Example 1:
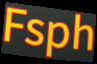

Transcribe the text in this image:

Fsph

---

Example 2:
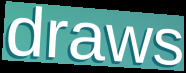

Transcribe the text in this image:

draws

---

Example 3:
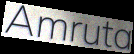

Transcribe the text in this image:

Amruta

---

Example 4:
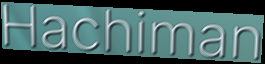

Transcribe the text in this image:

Hachiman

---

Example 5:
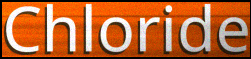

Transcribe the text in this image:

Chloride